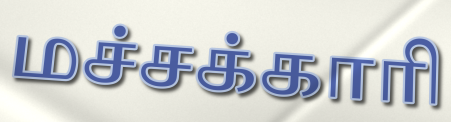
மச்சக்காரி